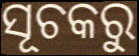
ସୂଚକରୁ